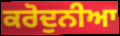
ਕਰੋਦੁਨੀਆ